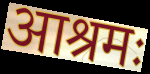
आश्रमः